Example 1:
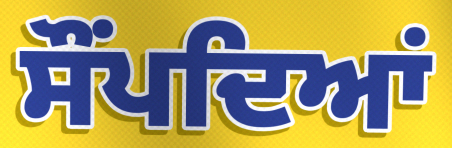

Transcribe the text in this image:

ਸੌਂਪਦਿਆਂ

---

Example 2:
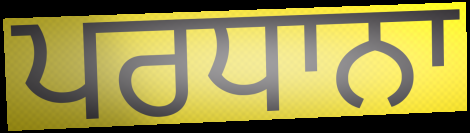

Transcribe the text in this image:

ਪਰਧਾਨਾ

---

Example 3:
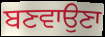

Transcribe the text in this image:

ਬਣਵਾਉਣਾ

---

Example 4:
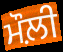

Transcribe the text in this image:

ਮੌਲ਼ੀ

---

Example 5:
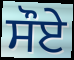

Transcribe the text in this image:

ਸੌਏ